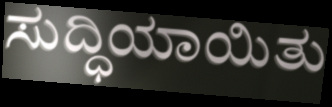
ಸುದ್ಧಿಯಾಯಿತು